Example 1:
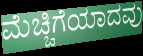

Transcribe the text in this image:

ಮೆಚ್ಚಿಗೆಯಾದವು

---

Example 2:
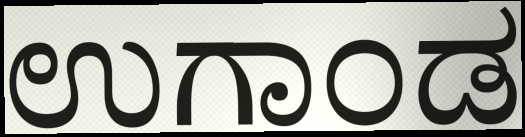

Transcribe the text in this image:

ಉಗಾಂಡ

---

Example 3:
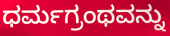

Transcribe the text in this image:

ಧರ್ಮಗ್ರಂಥವನ್ನು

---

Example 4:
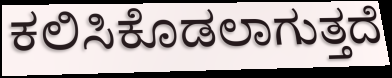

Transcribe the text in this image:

ಕಲಿಸಿಕೊಡಲಾಗುತ್ತದೆ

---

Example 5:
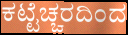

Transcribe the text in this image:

ಕಟ್ಟೆಚ್ಚರದಿಂದ